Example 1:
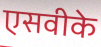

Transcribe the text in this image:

एसवीके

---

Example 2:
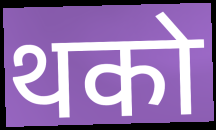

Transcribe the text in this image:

थको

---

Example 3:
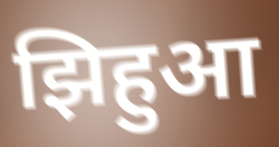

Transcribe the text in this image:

झिहुआ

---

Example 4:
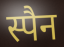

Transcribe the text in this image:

स्पैन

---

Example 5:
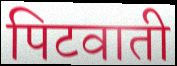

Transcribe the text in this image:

पिटवाती